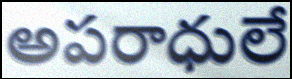
అపరాధులే